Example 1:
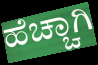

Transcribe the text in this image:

ಹೆಚ್ಚಾಗಿ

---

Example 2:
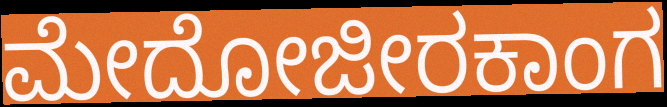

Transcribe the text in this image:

ಮೇದೋಜೀರಕಾಂಗ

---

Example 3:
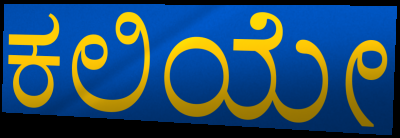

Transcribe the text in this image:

ಕಲಿಯೇ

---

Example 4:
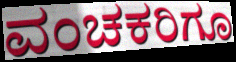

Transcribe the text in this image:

ವಂಚಕರಿಗೂ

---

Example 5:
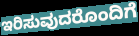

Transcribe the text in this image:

ಇರಿಸುವುದರೊಂದಿಗೆ